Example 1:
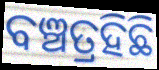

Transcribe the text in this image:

ବଞ୍ଚତ୍ରହିଛି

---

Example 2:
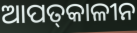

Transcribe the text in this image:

ଆପତ୍‌କାଳୀନ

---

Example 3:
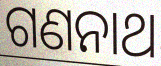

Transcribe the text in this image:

ଗଣନାଥ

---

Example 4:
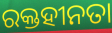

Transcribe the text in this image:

ରକ୍ତହୀନତା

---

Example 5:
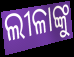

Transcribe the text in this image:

ଲୀଳାଙ୍କୁ